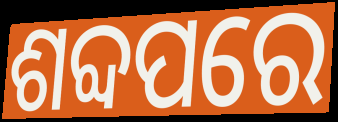
ଶବ୍ଦପରେ